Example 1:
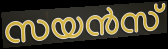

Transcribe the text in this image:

സയൻസ്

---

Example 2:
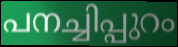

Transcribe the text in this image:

പനച്ചിപ്പുറം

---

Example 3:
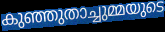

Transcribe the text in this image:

കുഞ്ഞുതാച്ചുമ്മയുടെ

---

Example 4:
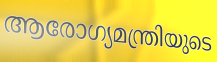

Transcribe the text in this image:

ആരോഗ്യമന്ത്രിയുടെ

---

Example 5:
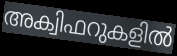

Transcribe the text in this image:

അക്വിഫറുകളിൽ